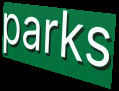
parks